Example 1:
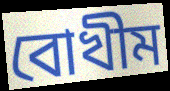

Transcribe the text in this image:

বোখীম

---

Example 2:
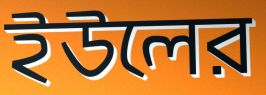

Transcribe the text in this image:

ইউলের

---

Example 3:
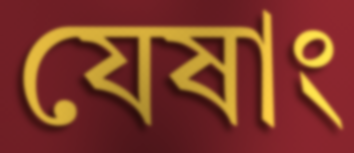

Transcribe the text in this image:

যেষাং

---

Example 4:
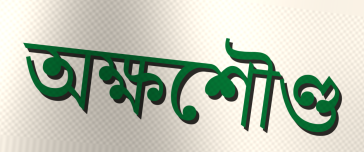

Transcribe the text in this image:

অক্ষশৌণ্ড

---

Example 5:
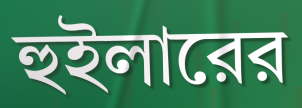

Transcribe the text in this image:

হুইলারের